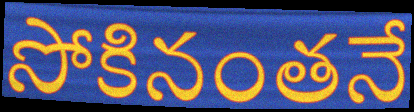
సోకినంతనే